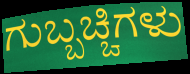
ಗುಬ್ಬಚ್ಚಿಗಳು